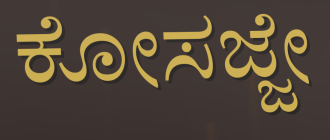
ಕೋಸಜ್ಜೇ